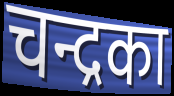
चन्द्रका